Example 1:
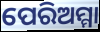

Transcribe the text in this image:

ପେରିଅମ୍ମା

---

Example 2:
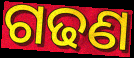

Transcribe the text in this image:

ଗଢଣ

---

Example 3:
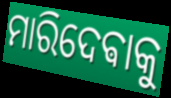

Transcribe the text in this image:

ମାରିଦେଵାକୁ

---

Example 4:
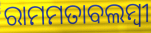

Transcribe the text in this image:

ରାମମତାବଲମ୍ବୀ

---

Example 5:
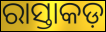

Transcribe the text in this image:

ରାସ୍ତାକଡ଼